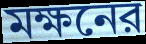
মক্ষনের